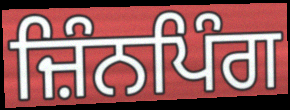
ਜ਼ਿੰਨਪਿੰਗ